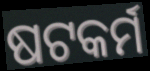
ଷଟକର୍ମ